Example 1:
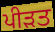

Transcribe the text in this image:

ਪੀਡ਼ਤ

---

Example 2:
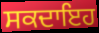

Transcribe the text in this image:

ਸਕਦਾਇਹ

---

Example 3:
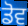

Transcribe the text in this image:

ਡੋਵ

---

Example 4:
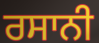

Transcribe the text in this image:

ਰਸਾਨੀ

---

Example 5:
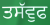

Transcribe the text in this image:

ਤਸੱਵੁਫ